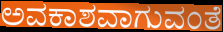
ಅವಕಾಶವಾಗುವಂತೆ